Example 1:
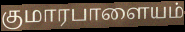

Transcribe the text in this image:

குமாரபாளையம்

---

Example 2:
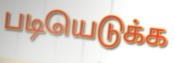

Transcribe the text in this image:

படியெடுக்க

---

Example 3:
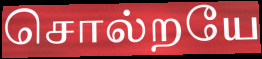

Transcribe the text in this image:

சொல்றயே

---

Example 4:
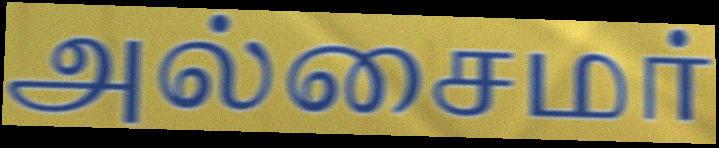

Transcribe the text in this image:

அல்சைமர்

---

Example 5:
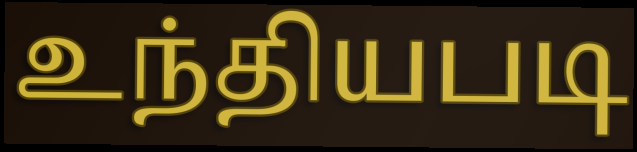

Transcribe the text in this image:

உந்தியபடி